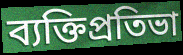
ব্যক্তিপ্রতিভা